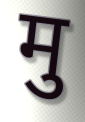
मु